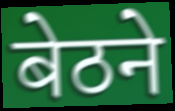
बेठने